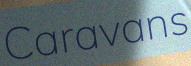
Caravans